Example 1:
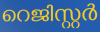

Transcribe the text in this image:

റെജിസ്റ്റർ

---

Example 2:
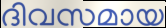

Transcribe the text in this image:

ദിവസമായ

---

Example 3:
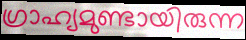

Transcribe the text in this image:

ഗ്രാഹ്യമുണ്ടായിരുന്ന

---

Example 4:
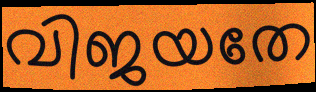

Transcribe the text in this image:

വിജയതേ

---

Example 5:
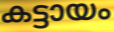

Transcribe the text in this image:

കട്ടായം